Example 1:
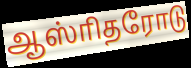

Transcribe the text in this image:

ஆஸ்ரிதரோடு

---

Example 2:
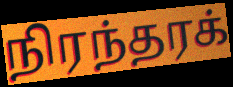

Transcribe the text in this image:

நிரந்தரக்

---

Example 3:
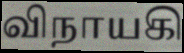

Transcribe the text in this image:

விநாயகி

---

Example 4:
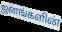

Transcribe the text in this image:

ஜனங்களின்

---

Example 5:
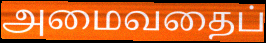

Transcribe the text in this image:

அமைவதைப்